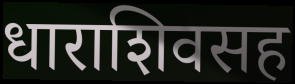
धाराशिवसह